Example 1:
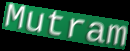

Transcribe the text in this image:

Mutram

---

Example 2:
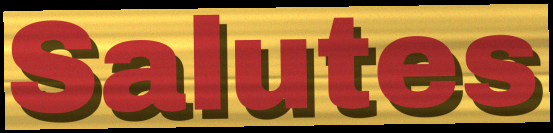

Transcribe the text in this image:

Salutes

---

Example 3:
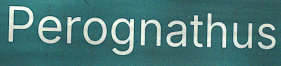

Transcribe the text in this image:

Perognathus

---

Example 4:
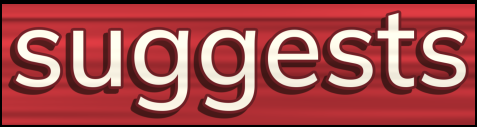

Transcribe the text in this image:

suggests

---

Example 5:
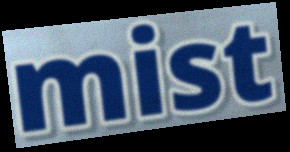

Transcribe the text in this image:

mist